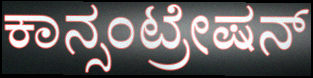
ಕಾನ್ಸಂಟ್ರೇಷನ್